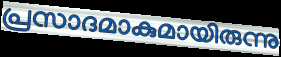
പ്രസാദമാകുമായിരുന്നു